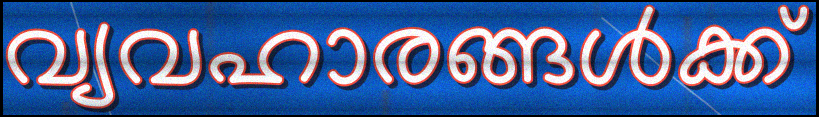
വ്യവഹാരങ്ങൾക്ക്